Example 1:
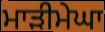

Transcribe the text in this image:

ਮਾੜੀਮੇਘਾ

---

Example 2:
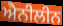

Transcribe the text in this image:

ਐਨੀਲੀਨ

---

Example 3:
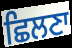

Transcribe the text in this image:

ਛਿਲਣਾ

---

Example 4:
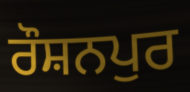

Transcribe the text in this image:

ਰੌਸ਼ਨਪੁਰ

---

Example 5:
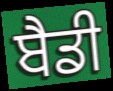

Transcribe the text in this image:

ਬੈਡੀ